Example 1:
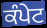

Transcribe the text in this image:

ਕੰਪੇਟ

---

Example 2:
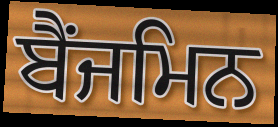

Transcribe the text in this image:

ਬੈਂਜਮਿਨ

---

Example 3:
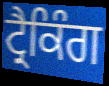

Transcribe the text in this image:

ਟ੍ਰੈਕਿੰਗ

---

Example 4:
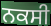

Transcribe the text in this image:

ਨਕਸੀ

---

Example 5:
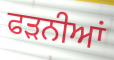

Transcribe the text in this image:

ਫੜਨੀਆਂ